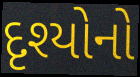
દૃશ્યોનો